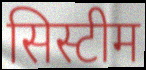
सिस्टीम